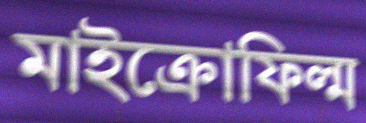
মাইক্রোফিল্ম